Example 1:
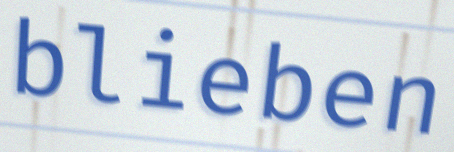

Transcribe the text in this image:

blieben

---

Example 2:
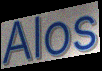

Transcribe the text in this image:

Alos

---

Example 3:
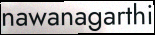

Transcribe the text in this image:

nawanagarthi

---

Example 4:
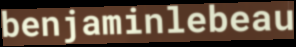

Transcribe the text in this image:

benjaminlebeau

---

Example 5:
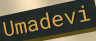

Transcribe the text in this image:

Umadevi